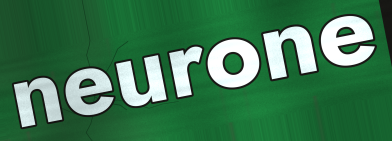
neurone